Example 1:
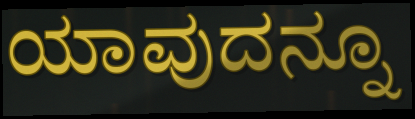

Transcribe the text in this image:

ಯಾವುದನ್ನೂ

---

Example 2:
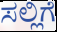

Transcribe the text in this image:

ಸಲ್ಲಿಗೆ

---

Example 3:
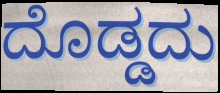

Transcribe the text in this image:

ದೊಡ್ಡದು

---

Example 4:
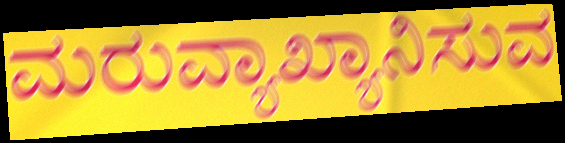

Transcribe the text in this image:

ಮರುವ್ಯಾಖ್ಯಾನಿಸುವ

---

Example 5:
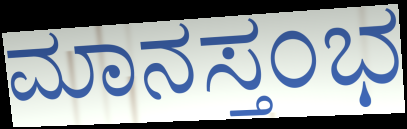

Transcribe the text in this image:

ಮಾನಸ್ತಂಭ